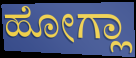
ಹೋಗ್ಲಾ